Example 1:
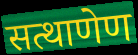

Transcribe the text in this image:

सत्थाणेण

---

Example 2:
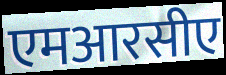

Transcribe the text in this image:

एमआरसीए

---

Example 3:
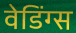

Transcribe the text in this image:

वेडिंग्स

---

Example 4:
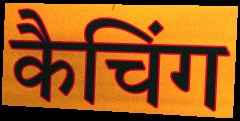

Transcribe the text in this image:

कैचिंग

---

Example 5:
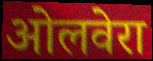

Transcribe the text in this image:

ओलवेरा